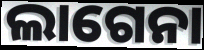
ଲାଗେନା